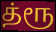
த்ரூ